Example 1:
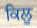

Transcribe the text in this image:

ਕਿਲੂ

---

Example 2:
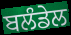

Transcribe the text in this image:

ਬਲੰਡੇਲ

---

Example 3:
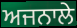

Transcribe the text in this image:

ਅਜਨਾਲੇ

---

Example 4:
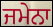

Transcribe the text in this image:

ਜਮੇਨਾ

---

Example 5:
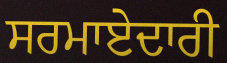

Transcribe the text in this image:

ਸਰਮਾਏਦਾਰੀ